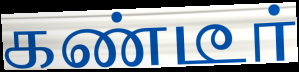
கண்டீர்